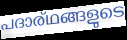
പദാര്ഥങ്ങളുടെ